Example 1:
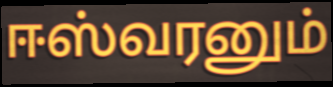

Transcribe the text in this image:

ஈஸ்வரனும்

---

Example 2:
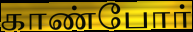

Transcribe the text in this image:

காண்போர்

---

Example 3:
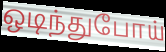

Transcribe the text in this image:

ஒடிந்துபோய்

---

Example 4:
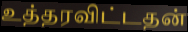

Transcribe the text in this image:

உத்தரவிட்டதன்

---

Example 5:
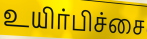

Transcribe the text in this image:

உயிர்பிச்சை